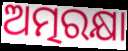
ଅତ୍ମରକ୍ଷା